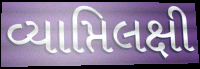
વ્યાપ્તિલક્ષી